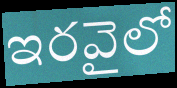
ఇరవైలో